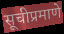
सूचीप्रमाणे